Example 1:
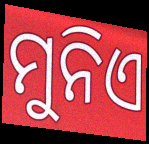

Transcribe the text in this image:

ମୁନିଏ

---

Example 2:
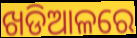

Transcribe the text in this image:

ଖଡିଆଳରେ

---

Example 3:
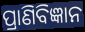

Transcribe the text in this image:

ପ୍ରାଣିବିଜ୍ଞାନ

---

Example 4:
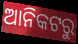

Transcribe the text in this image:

ଆନିକଟରୁ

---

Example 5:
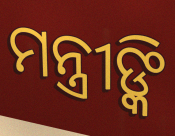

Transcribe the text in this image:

ମନ୍ତ୍ରୀଙ୍କି